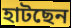
হাটছেন